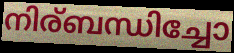
നിര്ബന്ധിച്ചോ